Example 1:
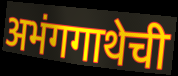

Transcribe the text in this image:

अभंगगाथेची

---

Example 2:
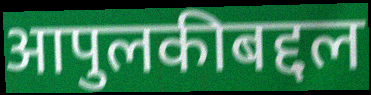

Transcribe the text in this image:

आपुलकीबद्दल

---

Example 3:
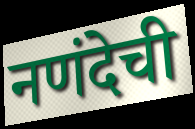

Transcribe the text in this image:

नणंदेची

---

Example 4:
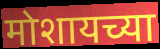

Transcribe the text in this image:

मोशायच्या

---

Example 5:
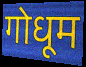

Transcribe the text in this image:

गोधूम